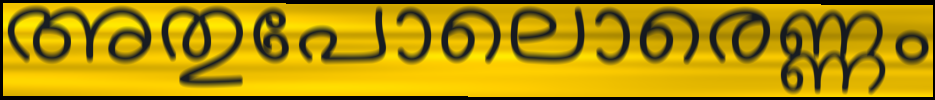
അതുപോലൊരെണ്ണം